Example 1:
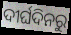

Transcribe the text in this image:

ଦୀର୍ଘଦିନରୁ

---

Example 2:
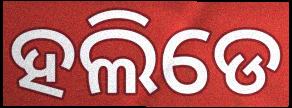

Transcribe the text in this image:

ହଲିଡେ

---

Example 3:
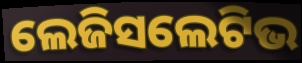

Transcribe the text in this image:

ଲେଜିସଲେଟିଭ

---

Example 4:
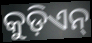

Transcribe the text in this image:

କୁଡ଼ିଏନ୍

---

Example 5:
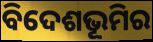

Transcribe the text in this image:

ବିଦେଶଭୂମିର